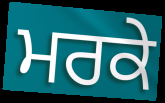
ਮਰਕੇ